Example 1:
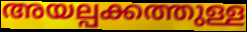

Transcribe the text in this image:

അയല്പക്കത്തുള്ള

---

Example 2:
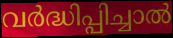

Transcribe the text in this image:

വർദ്ധിപ്പിച്ചാൽ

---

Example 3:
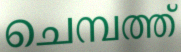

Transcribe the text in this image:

ചെമ്പത്ത്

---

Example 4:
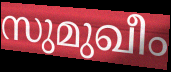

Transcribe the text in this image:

സുമുഖീം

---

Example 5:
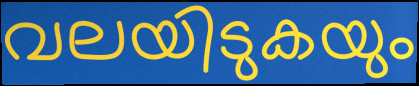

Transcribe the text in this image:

വലയിടുകയും